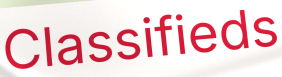
Classifieds